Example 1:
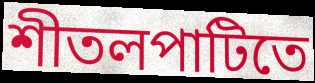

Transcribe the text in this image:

শীতলপাটিতে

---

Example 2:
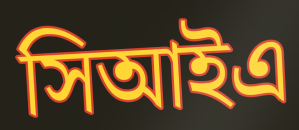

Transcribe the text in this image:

সিআইএ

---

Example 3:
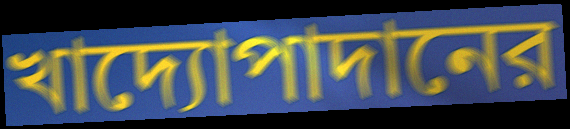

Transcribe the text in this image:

খাদ্যোপাদানের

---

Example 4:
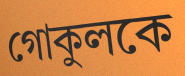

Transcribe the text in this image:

গোকুলকে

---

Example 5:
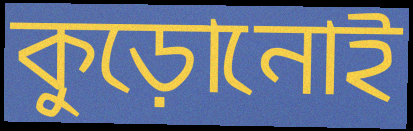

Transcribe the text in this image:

কুড়োনোই